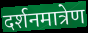
दर्शनमात्रेण